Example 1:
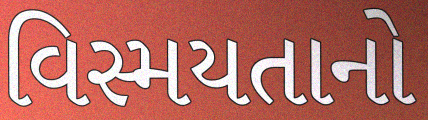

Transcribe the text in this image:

વિસ્મયતાનો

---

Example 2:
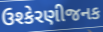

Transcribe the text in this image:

ઉશ્કેરણીજનક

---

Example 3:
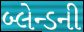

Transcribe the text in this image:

બ્લેન્ડની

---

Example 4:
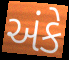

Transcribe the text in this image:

અંકે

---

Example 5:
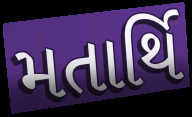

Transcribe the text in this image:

મતાર્થિ